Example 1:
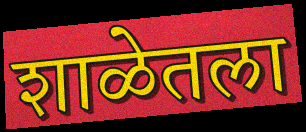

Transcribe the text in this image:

शाळेतला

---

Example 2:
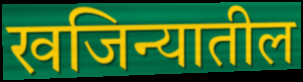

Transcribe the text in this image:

खजिन्यातील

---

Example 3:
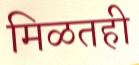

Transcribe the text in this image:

मिळतही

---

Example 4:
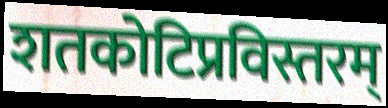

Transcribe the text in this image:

शतकोटिप्रविस्तरम्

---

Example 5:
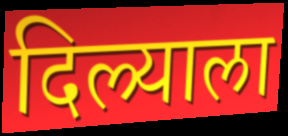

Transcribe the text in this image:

दिल्याला